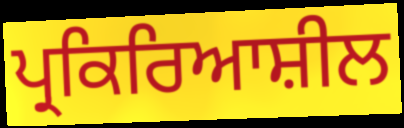
ਪ੍ਰਕਿਰਿਆਸ਼ੀਲ